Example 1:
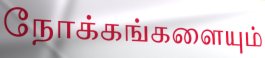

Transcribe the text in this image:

நோக்கங்களையும்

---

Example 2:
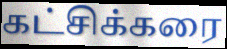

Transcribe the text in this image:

கட்சிக்கரை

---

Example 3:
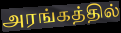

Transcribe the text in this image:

அரங்கத்தில்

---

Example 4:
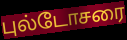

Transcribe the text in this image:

புல்டோசரை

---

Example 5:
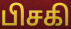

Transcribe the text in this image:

பிசகி